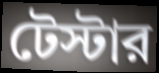
টেস্টার